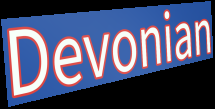
Devonian